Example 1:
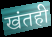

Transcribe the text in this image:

खंतही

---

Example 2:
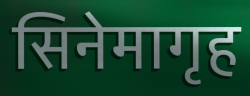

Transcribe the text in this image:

सिनेमागृह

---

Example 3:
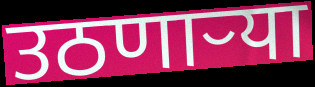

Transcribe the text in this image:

उठणाऱ्या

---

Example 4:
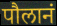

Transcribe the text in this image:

पौलानं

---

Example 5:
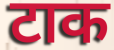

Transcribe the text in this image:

टाक